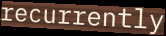
recurrently